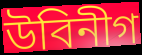
উবিনীগ